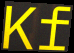
Kf